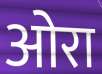
ओरा